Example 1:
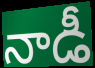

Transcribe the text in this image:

నాడీ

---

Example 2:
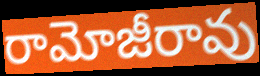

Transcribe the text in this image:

రామోజీరావు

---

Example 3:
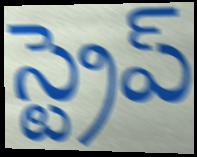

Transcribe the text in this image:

స్ట్రెప్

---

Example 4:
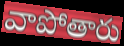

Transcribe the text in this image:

వాపోతారు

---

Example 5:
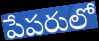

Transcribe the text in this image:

పేపరులో